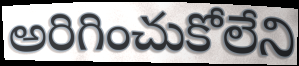
అరిగించుకోలేని